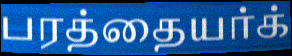
பரத்தையர்க்